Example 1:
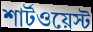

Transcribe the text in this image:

শার্টওয়েস্ট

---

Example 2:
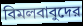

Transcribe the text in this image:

বিমলবাবুদের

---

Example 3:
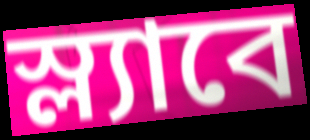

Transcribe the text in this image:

স্ল্যাবে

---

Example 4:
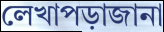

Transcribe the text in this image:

লেখাপড়াজানা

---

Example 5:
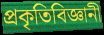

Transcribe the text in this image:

প্রকৃতিবিজ্ঞানী